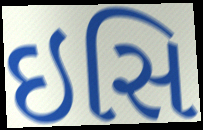
ઇસિ